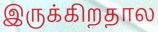
இருக்கிறதால